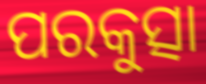
ପରକୁତ୍ସା